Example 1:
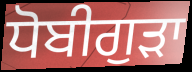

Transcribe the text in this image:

ਧੋਬੀਗੁੜਾ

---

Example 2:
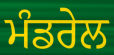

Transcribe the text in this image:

ਮੰਡਰੇਲ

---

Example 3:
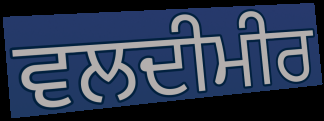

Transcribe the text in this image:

ਵਲਦੀਮੀਰ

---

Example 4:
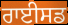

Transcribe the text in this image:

ਰਾਈਸਡ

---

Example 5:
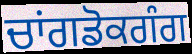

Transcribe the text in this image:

ਚਾਂਗਡੋਕਗੰਗ